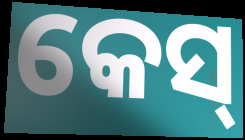
କେସ୍